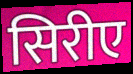
सिरीए